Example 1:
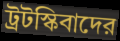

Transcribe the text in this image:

ট্রটস্কিবাদের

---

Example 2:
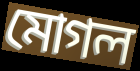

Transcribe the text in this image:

মোগল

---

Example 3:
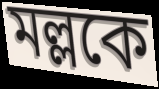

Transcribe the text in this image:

মল্লকে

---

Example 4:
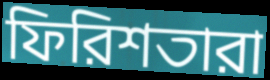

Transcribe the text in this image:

ফিরিশতারা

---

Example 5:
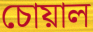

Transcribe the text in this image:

চোয়াল